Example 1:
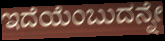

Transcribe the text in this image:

ಇದೆಯೆಂಬುದನ್ನೇ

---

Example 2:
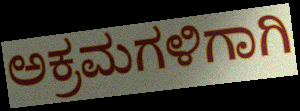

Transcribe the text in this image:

ಅಕ್ರಮಗಳಿಗಾಗಿ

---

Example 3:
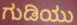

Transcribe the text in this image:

ಗುಡಿಯು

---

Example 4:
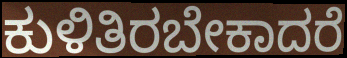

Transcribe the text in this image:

ಕುಳಿತಿರಬೇಕಾದರೆ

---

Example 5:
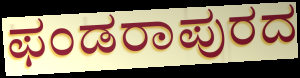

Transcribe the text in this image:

ಫಂಡರಾಪುರದ